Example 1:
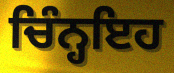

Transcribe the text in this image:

ਚਿੰਨ੍ਹਇਹ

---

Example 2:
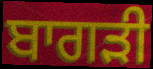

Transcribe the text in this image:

ਬਾਗੜੀ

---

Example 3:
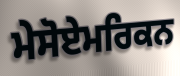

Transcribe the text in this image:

ਮੇਸੋਏਮਰਿਕਨ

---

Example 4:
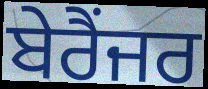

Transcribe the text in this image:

ਬੇਰੈਂਜਰ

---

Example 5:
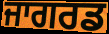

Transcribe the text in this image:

ਜਾਗਰਡ